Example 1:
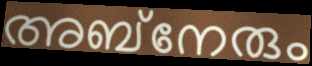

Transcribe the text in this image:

അബ്നേരും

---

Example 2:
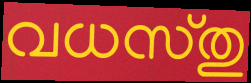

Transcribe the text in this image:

വധസ്തു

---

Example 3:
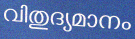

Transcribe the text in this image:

വിതുദ്യമാനം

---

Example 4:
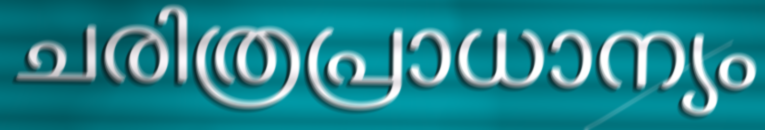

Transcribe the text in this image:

ചരിത്രപ്രാധാന്യം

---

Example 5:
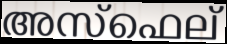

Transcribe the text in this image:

അസ്ഫെല്